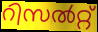
റിസൽറ്റ്